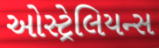
ઓસ્ટ્રેલિયન્સ